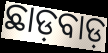
ଛାଡ଼ବାଡ଼